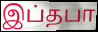
இப்தபா